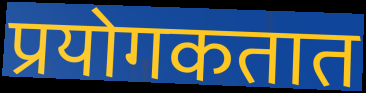
प्रयोगकतात